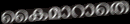
കൈമാറാതെ